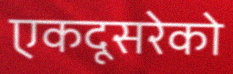
एकदूसरेको